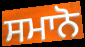
ਸਮਾਨੋ